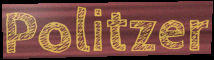
Politzer